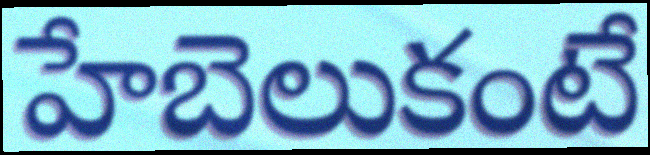
హేబెలుకంటే